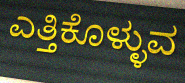
ಎತ್ತಿಕೊಳ್ಳುವ